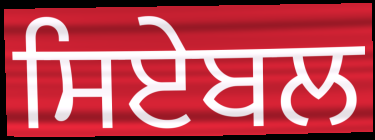
ਸਿਏਬਲ